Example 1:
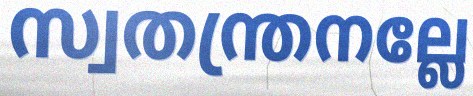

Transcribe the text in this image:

സ്വതന്ത്രനല്ലേ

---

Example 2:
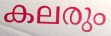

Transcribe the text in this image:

കലരും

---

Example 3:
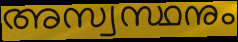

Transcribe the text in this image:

അസ്വസ്ഥനും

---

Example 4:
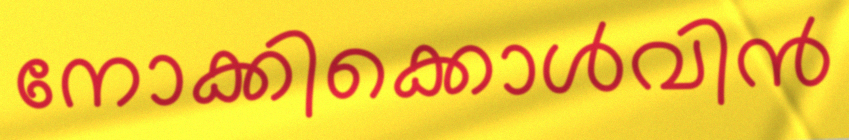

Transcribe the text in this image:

നോക്കിക്കൊൾവിൻ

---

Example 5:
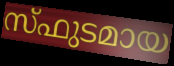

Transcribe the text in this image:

സ്ഫുടമായ